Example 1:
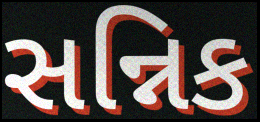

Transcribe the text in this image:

સન્નિક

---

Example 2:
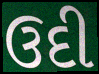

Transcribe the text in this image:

ઉદી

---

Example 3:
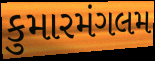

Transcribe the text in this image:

કુમારમંગલમ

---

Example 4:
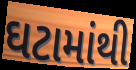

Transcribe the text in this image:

ઘટામાંથી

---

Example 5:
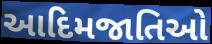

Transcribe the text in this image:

આદિમજાતિઓ